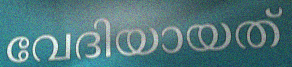
വേദിയായത്